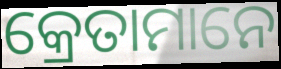
କ୍ରେତାମାନେ